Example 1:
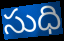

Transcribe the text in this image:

సుధి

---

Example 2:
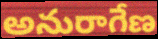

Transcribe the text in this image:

అనురాగేణ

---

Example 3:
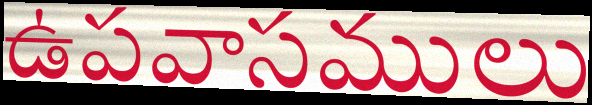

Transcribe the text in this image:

ఉపవాసములు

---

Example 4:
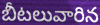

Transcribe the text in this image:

బీటలువారిన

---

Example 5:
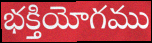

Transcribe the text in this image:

భక్తియోగము